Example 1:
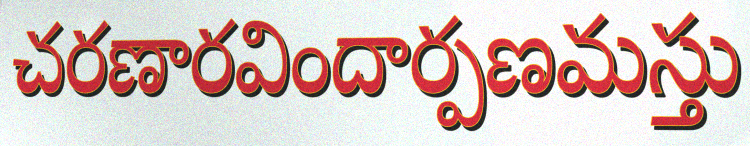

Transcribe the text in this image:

చరణారవిందార్పణమస్తు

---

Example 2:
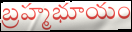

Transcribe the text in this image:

బ్రహ్మభూయం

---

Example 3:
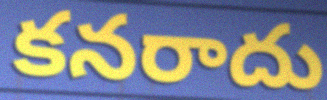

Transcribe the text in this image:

కనరాదు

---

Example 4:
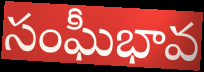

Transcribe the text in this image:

సంఘీభావ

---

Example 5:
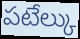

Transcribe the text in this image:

పటేల్కు